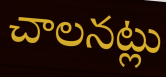
చాలనట్లు